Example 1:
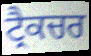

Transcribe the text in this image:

ਟ੍ਰੈਕਚਰ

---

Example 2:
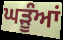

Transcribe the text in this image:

ਘੜੂੰਆਂ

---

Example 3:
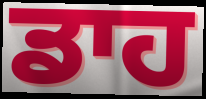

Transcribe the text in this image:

ਡਾਹ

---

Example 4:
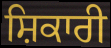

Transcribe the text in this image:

ਸ਼ਿਕਾਰੀ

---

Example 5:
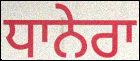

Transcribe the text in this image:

ਧਾਨੇਰਾ